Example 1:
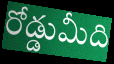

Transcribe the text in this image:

రోడ్డుమీది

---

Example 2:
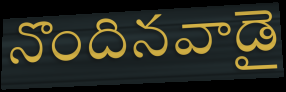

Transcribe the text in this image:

నొందినవాడై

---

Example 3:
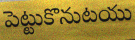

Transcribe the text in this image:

పెట్టుకొనుటయు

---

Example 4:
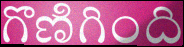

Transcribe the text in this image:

గొణిగింది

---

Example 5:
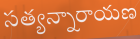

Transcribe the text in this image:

సత్యన్నారాయణ